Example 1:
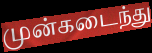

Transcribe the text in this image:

முன்கடைந்து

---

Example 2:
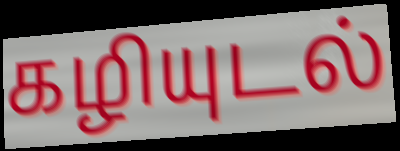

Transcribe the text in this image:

கழியுடல்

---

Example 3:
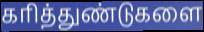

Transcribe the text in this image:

கரித்துண்டுகளை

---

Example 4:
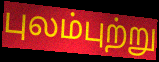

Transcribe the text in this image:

புலம்புற்று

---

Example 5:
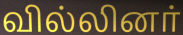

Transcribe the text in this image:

வில்லினர்